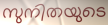
സുനിതയുടെ